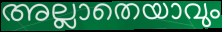
അല്ലാതെയാവും